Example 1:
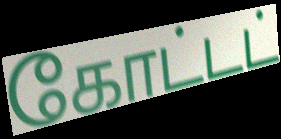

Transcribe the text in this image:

கோட்டட்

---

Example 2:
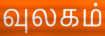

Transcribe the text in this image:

வுலகம்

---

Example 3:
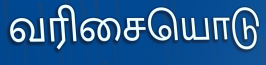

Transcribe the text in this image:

வரிசையொடு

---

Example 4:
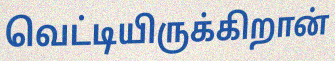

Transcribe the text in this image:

வெட்டியிருக்கிறான்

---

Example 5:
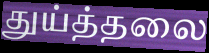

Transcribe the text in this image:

துய்த்தலை